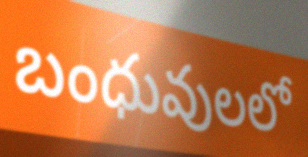
బంధువులలో